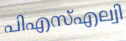
പിഎസ്എല്വി